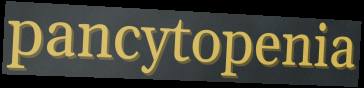
pancytopenia